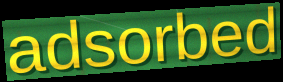
adsorbed